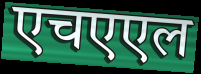
एचएएल